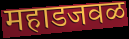
महाडजवळ